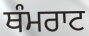
ਥੰਮਰਾਟ